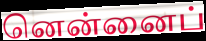
னென்னைப்